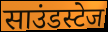
साउंडस्टेज